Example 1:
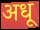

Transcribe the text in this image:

अधू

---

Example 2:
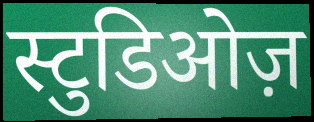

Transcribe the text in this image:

स्टुडिओज़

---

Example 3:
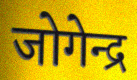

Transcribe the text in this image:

जोगेन्द्र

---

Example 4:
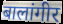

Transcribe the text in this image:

बालांगीर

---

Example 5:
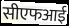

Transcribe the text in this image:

सीएफआई